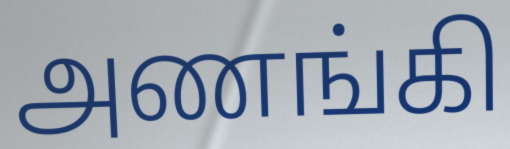
அணங்கி